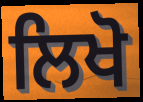
ਲਿਖੋ